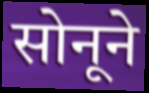
सोनूने